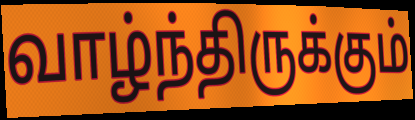
வாழ்ந்திருக்கும்